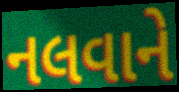
નલવાને